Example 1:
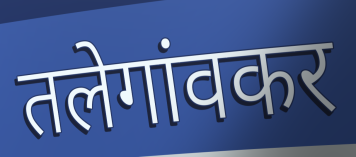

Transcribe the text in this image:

तलेगांवकर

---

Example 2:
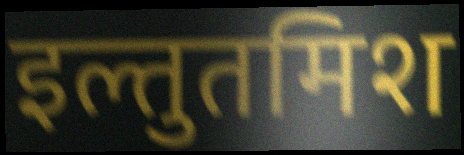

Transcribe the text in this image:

इल्तुतमिश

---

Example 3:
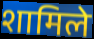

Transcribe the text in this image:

शामिले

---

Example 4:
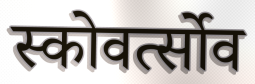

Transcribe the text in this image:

स्कोवर्त्सोव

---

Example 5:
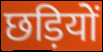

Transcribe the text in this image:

छड़ियों